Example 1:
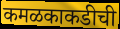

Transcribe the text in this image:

कमळकाकडीची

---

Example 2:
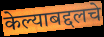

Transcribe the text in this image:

केल्याबद्दलचे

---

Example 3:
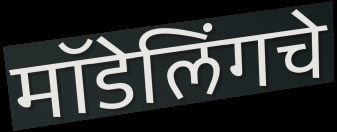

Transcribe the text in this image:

मॉडेलिंगचे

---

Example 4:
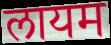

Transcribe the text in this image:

लायम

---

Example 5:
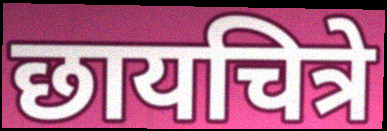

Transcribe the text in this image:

छायचित्रे